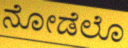
ನೋಡೆಲೊ